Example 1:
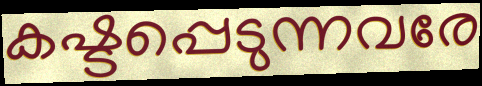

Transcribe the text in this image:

കഷ്ടപ്പെടുന്നവരേ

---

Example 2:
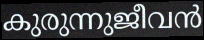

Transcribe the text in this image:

കുരുന്നുജീവൻ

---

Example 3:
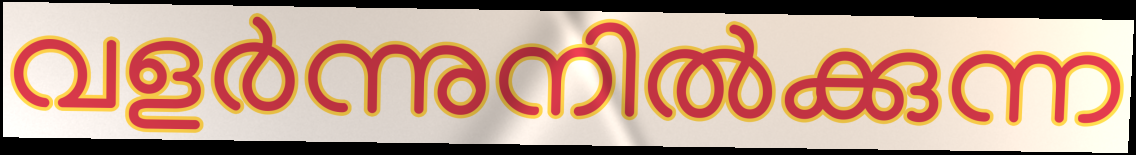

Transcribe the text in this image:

വളർന്നുനിൽക്കുന്ന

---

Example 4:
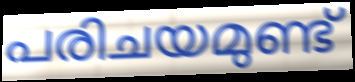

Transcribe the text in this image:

പരിചയമുണ്ട്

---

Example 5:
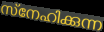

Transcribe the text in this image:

സ്‌നേഹിക്കുന്ന